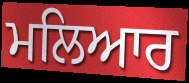
ਮਲਿਆਰ